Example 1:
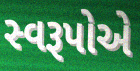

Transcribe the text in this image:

સ્વરૂપોએ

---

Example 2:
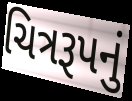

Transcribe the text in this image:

ચિત્રરૂપનું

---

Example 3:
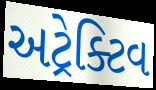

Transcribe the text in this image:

અટ્રેક્ટિવ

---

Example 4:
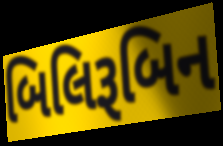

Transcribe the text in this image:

બિલિરૂબિન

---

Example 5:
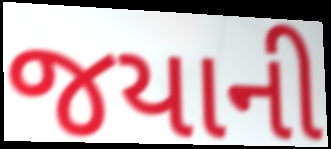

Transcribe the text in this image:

જયાની